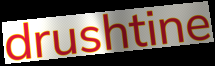
drushtine